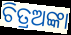
ଚିତ୍ରଅଙ୍କା